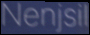
Nenjsil